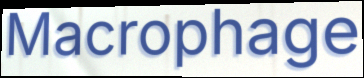
Macrophage